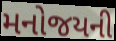
મનોજયની